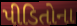
પીડિતોના